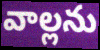
వాల్లను